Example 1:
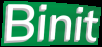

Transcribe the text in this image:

Binit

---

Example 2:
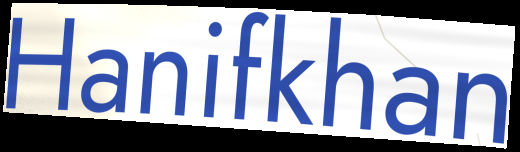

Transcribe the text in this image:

Hanifkhan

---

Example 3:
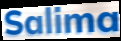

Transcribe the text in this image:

Salima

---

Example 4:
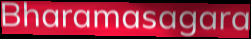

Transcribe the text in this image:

Bharamasagara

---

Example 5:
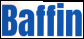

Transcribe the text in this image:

Baffin